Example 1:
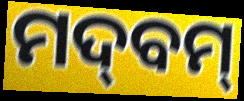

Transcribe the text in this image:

ମଦ୍‌ବମ୍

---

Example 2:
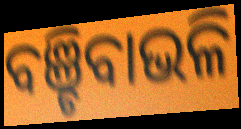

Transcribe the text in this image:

ବଞ୍ଚିବାଭଳି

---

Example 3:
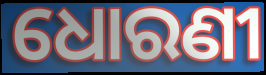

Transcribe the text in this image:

ଧୋରଣୀ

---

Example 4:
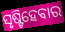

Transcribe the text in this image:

ସୃଷ୍ଟିହେବାର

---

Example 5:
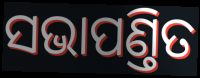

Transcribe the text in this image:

ସଭାପଣ୍ତିତ